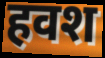
हवश